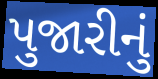
પુજારીનું